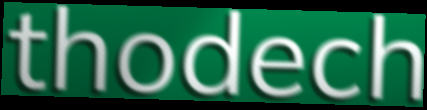
thodech